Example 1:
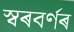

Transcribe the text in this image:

স্বৰবৰ্ণৰ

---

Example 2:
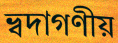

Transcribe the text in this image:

ভ্বদাগণীয়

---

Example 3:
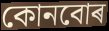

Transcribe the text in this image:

কোনবোৰ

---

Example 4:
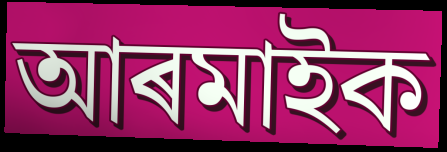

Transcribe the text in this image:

আৰমাইক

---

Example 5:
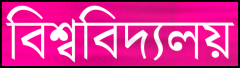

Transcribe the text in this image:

বিশ্ববিদ্যলয়